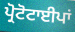
ਪ੍ਰੋਟੋਟਾਈਪਾਂ